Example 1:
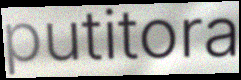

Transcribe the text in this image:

putitora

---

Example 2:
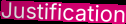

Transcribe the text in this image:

Justification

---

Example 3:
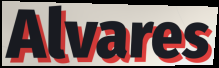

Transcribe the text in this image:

Alvares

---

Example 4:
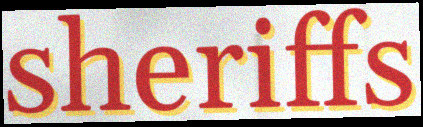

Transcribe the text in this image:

sheriffs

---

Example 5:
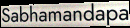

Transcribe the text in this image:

Sabhamandapa